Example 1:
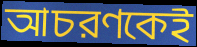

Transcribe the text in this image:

আচরণকেই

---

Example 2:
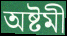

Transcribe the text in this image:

অষ্টমী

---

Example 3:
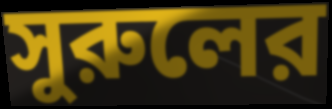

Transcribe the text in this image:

সুরুলের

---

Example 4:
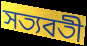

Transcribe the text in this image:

সত্যবতী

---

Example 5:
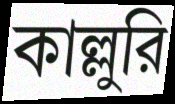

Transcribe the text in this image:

কাল্লুরি